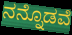
ನನ್ನೊಡವೆ